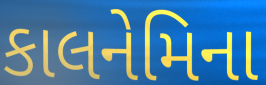
કાલનેમિના